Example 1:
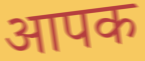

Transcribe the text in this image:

आपक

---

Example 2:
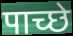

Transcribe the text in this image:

पाच्छे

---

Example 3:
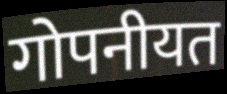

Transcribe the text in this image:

गोपनीयत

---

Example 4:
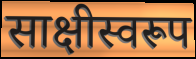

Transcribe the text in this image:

साक्षीस्वरूप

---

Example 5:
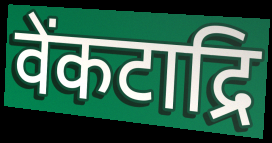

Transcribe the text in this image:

वेंकटाद्रि